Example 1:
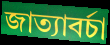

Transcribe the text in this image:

জাত্যাবৰ্চা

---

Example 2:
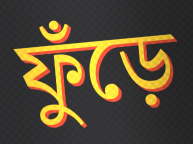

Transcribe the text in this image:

ফুঁড়ে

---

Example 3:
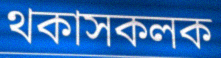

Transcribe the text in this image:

থকাসকলক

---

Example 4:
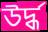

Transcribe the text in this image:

উৰ্দ্ধ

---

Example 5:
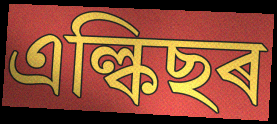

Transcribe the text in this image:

এল্কিছৰ